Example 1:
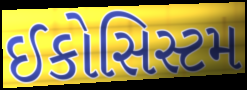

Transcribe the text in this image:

ઈકોસિસ્ટમ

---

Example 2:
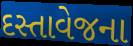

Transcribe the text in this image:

દસ્તાવેજના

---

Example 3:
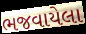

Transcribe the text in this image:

ભજવાયેલા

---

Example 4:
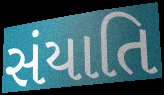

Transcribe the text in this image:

સંયાતિ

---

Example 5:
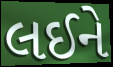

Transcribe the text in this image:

લઈને